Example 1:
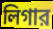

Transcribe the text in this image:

লিগার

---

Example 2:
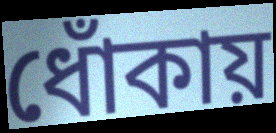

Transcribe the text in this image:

ধোঁকায়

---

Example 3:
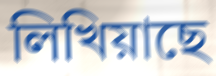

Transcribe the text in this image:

লিখিয়াছে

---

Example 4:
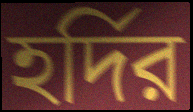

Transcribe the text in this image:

হর্দির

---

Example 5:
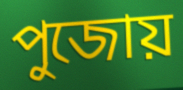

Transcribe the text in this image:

পুজোয়